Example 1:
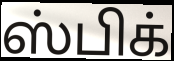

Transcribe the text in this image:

ஸ்பிக்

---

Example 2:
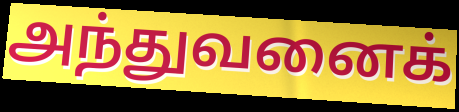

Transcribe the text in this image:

அந்துவனைக்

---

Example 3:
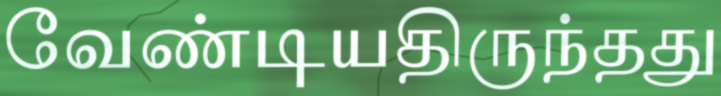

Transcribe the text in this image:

வேண்டியதிருந்தது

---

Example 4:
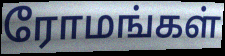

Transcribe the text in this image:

ரோமங்கள்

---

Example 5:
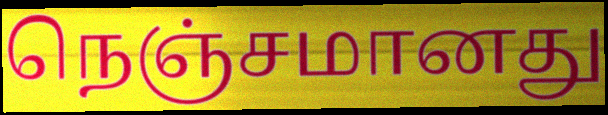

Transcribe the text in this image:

நெஞ்சமானது